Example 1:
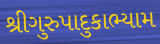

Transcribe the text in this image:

શ્રીગુરુપાદુકાભ્યામ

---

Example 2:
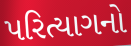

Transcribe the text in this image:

પરિત્યાગનો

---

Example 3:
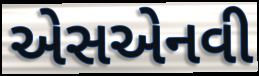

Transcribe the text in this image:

એસએનવી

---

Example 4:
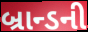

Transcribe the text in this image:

બ્રાન્ડની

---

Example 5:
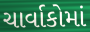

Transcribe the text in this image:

ચાર્વાકોમાં